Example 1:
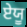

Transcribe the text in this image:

ਏਯੂ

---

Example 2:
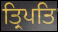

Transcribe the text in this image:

ਤ੍ਰਿਪਤਿ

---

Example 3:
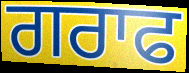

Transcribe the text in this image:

ਗਰਾਫ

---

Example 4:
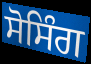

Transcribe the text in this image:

ਸੋਸਿੰਗ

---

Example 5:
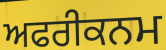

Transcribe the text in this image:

ਅਫਰੀਕਨਮ